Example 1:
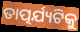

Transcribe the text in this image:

ତାତ୍ପର୍ଯ୍ୟଟିକୁ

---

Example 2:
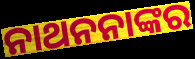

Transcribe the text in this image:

ନାଥନନାଙ୍କର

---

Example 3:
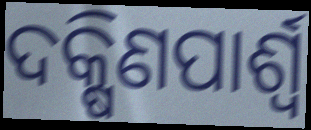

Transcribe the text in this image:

ଦକ୍ଷିଣପାର୍ଶ୍ବ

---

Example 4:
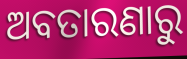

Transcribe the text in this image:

ଅବତାରଣାରୁ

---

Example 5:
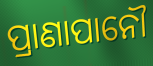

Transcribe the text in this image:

ପ୍ରାଣାପାନୌ